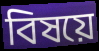
বিষয়ে